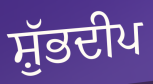
ਸ਼ੁੱਭਦੀਪ